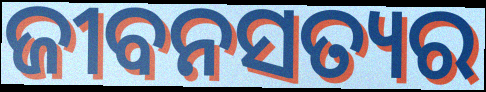
ଜୀବନସତ୍ୟର